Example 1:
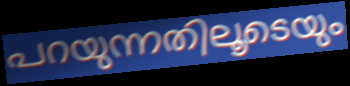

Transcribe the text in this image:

പറയുന്നതിലൂടെയും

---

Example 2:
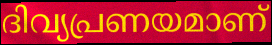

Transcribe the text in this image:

ദിവ്യപ്രണയമാണ്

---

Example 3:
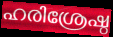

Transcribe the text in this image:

ഹരിശ്രേഷ്ഠ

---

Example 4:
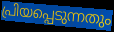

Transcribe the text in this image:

പ്രിയപ്പെടുന്നതും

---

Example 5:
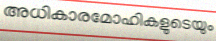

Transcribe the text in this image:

അധികാരമോഹികളുടെയും